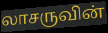
லாசருவின்